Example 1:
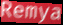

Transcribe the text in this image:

Remya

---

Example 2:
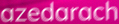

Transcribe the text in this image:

azedarach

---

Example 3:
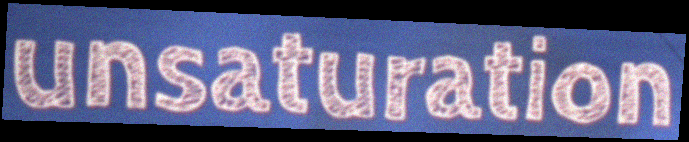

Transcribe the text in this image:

unsaturation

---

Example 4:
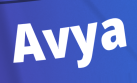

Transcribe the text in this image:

Avya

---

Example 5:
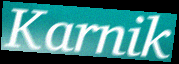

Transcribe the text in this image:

Karnik